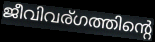
ജീവിവര്ഗത്തിന്റെ